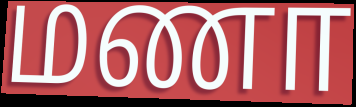
மணா